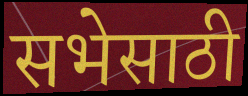
सभेसाठी